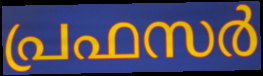
പ്രഫസർ